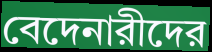
বেদেনারীদের